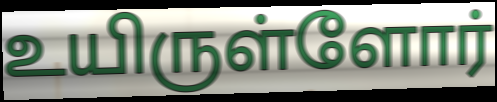
உயிருள்ளோர்